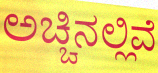
ಅಚ್ಚಿನಲ್ಲಿವೆ